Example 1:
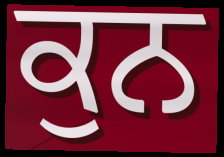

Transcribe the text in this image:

ਕੁਨ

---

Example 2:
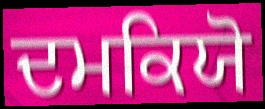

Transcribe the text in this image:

ਦਮਕਿਯੋ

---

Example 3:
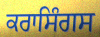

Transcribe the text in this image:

ਕਰਾਸਿੰਗਸ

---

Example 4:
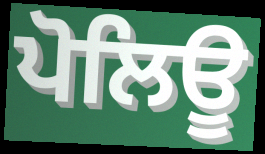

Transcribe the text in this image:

ਪੋਲਿਊ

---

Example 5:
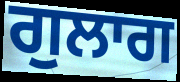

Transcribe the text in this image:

ਗੁਲਾਗ